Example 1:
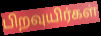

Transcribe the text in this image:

பிறவுயிர்கள்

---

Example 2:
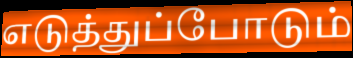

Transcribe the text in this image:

எடுத்துப்போடும்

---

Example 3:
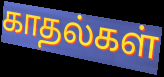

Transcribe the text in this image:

காதல்கள்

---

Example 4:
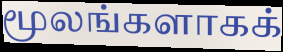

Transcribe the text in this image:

மூலங்களாகக்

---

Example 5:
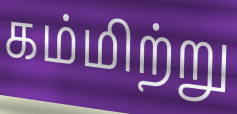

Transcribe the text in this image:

கம்மிற்று